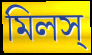
মিলস্